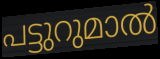
പട്ടുറുമാൽ